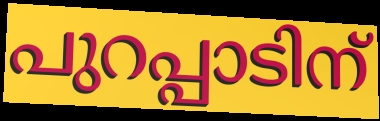
പുറപ്പാടിന്